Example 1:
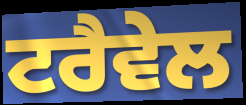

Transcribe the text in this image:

ਟਰੈਵੇਲ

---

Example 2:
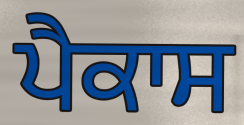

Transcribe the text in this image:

ਪੈਕਾਸ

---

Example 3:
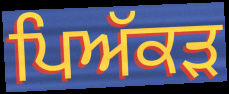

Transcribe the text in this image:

ਪਿਅੱਕੜ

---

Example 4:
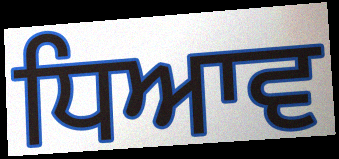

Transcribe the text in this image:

ਧਿਆਵ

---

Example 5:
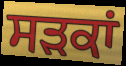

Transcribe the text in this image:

ਸਡ਼ਕਾਂ